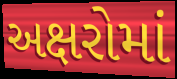
અક્ષરોમાં